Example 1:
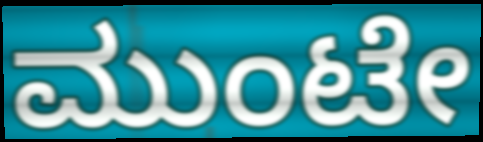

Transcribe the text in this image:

ಮುಂಟೇ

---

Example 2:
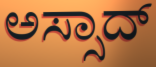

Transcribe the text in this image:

ಅಸ್ಸಾದ್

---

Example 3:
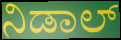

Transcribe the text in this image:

ನಿಡಾಲ್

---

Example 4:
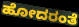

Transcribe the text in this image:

ಹೋದರಂತೆ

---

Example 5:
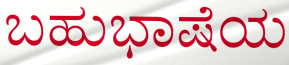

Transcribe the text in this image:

ಬಹುಭಾಷೆಯ